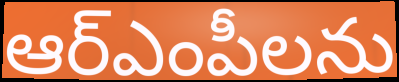
ఆర్ఎంపీలను